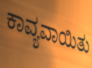
ಕಾವ್ಯವಾಯಿತು